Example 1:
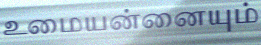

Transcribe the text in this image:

உமையன்னையும்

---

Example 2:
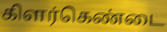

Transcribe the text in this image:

கிளர்கெண்டை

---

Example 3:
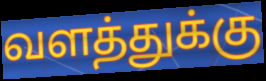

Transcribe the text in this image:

வளத்துக்கு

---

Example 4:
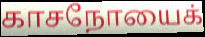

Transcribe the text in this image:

காசநோயைக்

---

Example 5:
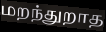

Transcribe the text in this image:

மறந்துறாத